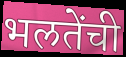
भलतेंची